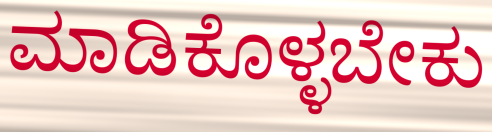
ಮಾಡಿಕೊಳ್ಳಬೇಕು